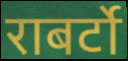
राबर्टो